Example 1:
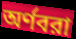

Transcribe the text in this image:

অর্ণবরা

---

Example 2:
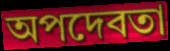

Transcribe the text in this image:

অপদেবতা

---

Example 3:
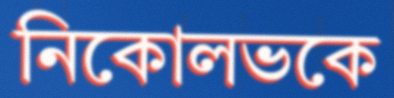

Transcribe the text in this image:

নিকোলভকে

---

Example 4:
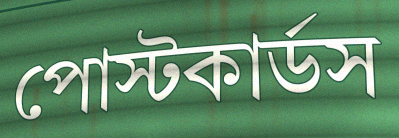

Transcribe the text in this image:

পোস্টকার্ডস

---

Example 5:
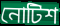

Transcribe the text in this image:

নোটিশ